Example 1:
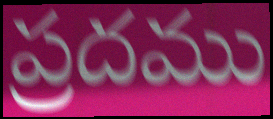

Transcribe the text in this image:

ప్రదము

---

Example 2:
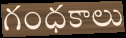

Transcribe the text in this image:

గంధకాలు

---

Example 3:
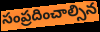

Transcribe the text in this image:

సంప్రదించాల్సిన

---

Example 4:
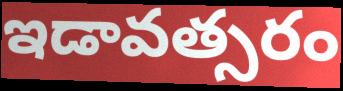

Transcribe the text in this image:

ఇడావత్సరం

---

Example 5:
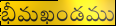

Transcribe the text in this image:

భీమఖండము